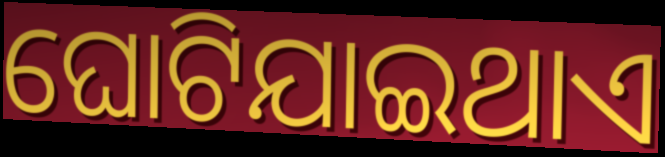
ଘୋଟିଯାଇଥାଏ